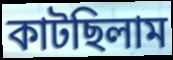
কাটছিলাম